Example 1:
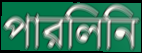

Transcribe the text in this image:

পারলিনি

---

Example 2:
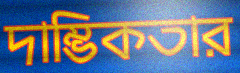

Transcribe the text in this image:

দাম্ভিকতার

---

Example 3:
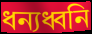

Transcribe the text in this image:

ধন্যধ্বনি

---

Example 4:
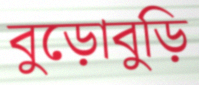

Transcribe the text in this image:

বুড়োবুড়ি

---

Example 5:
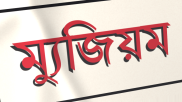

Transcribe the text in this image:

ম্যুজিয়ম